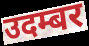
उदम्बर